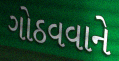
ગોઠવવાને